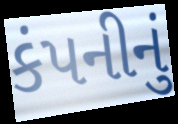
કંપનીનું